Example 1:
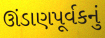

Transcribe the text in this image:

ઊંડાણપૂર્વકનું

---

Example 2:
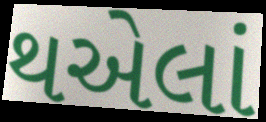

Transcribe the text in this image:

થએલાં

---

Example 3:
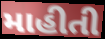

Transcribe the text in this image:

માહીતી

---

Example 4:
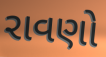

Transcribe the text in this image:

રાવણો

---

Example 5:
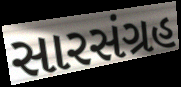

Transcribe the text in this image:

સારસંગ્રહ